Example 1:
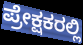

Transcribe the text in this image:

ಪ್ರೇಕ್ಷಕರಲ್ಲಿ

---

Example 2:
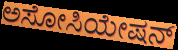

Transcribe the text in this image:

ಅಸೋಸಿಯೇಷನ್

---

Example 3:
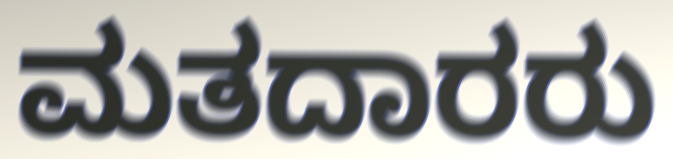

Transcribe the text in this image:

ಮತದಾರರು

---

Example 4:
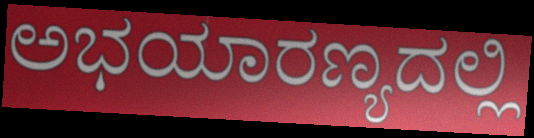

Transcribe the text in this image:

ಅಭಯಾರಣ್ಯದಲ್ಲಿ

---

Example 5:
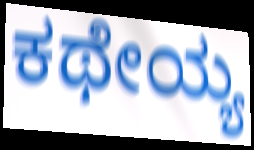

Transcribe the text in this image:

ಕಥೇಯ್ಯ